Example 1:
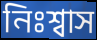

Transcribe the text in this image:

নিঃশ্বাস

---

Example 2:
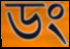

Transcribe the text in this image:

ডং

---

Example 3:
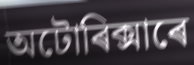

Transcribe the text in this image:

অটোৰিক্সাৰে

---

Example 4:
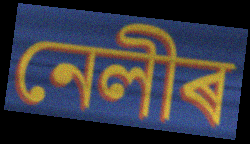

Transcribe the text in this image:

নেলীৰ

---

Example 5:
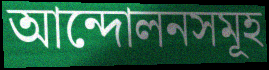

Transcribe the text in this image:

আন্দোলনসমূহ